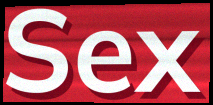
Sex